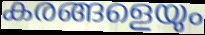
കരങ്ങളെയും